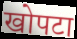
खोपटा